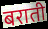
बराती